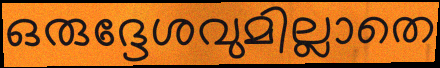
ഒരുദ്ദേശവുമില്ലാതെ